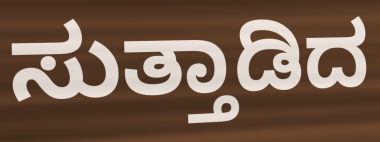
ಸುತ್ತಾಡಿದ